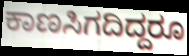
ಕಾಣಸಿಗದಿದ್ದರೂ